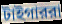
টাইগাররা